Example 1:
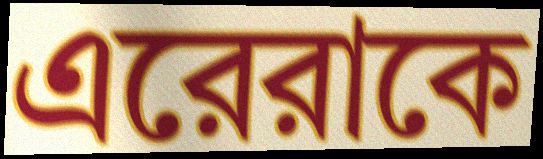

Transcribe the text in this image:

এরেরাকে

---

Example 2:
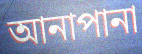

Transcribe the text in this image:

আনাপানা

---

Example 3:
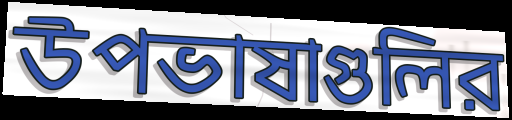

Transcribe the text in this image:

উপভাষাগুলির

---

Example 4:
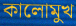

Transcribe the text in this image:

কালোমুখ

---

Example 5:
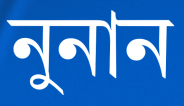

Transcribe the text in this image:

নুনান